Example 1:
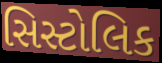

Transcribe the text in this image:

સિસ્ટોલિક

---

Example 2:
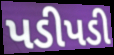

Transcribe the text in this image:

પડીપડી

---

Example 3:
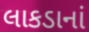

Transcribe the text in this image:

લાકડાનાં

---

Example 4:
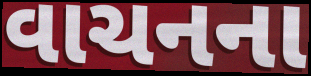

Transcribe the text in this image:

વાચનના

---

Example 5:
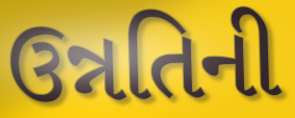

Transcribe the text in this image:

ઉન્નતિની